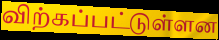
விற்கப்பட்டுள்ளன